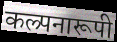
कल्पनारूपी